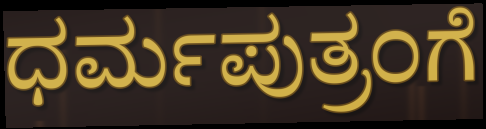
ಧರ್ಮಪುತ್ರಂಗೆ